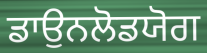
ਡਾਉਨਲੋਡਯੋਗ